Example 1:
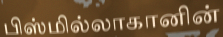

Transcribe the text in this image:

பிஸ்மில்லாகானின்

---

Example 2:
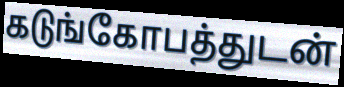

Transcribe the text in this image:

கடுங்கோபத்துடன்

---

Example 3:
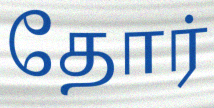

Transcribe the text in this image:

தோர்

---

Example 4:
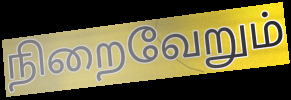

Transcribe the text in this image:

நிறைவேறும்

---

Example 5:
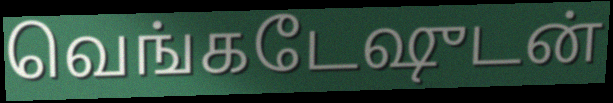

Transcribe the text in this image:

வெங்கடேஷுடன்